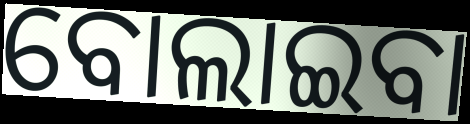
ବୋଲାଇବା